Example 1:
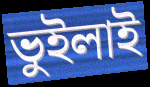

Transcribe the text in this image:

ভুইলাই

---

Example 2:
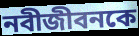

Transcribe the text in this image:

নবীজীবনকে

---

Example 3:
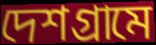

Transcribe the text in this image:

দেশগ্রামে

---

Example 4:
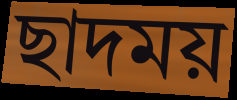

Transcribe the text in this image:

ছাদময়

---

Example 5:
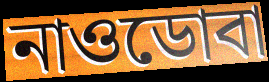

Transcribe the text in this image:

নাওডোবা